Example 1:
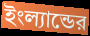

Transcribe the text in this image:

ইংল্য়ান্ডের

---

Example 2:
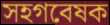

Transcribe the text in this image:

সহগবেষক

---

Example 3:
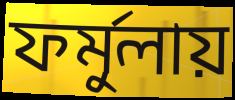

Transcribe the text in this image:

ফর্মুলায়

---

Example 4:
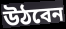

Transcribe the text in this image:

উঠবেন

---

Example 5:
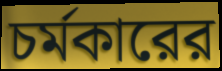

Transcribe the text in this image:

চর্মকারের